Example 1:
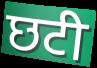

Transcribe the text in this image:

छटी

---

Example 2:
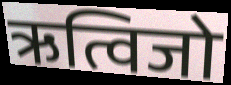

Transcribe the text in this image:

ऋत्विजो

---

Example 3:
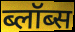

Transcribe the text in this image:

ब्लॉब्स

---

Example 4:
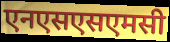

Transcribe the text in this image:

एनएसएसएमसी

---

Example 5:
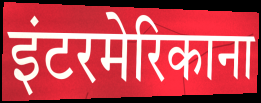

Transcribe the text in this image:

इंटरमेरिकाना